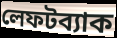
লেফটব্যাক